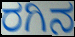
ರಗಿನ